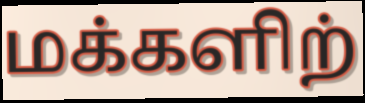
மக்களிற்